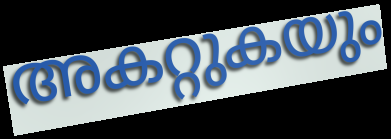
അകറ്റുകയും